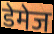
डेमेज